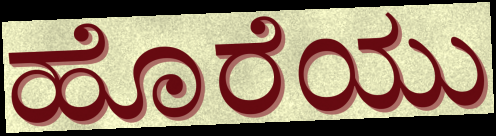
ಹೊರೆಯು